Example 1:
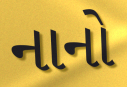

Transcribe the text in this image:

નાનો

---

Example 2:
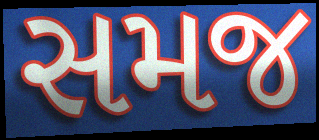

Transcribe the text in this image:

સમજ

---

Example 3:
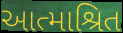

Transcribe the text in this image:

આત્માશ્રિત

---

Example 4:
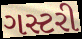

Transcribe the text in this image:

ગસ્ટરી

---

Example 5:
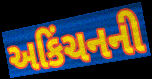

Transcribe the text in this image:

અકિંચનની